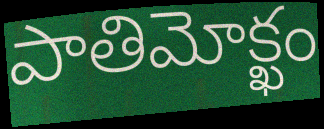
పాతిమోక్ఖం